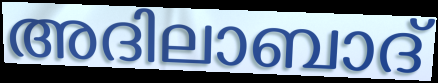
അദിലാബാദ്